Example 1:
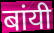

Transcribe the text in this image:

बांयी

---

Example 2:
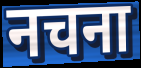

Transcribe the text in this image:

नचना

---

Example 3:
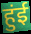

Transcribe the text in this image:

हुंई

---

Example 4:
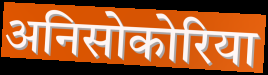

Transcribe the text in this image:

अनिसोकोरिया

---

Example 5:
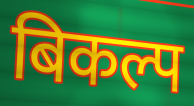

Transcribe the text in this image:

बिकल्प